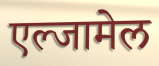
एल्जामेल